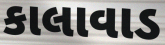
કાલાવાડ